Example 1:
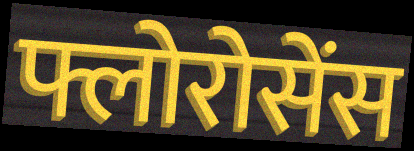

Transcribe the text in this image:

फ्लोरोसेंस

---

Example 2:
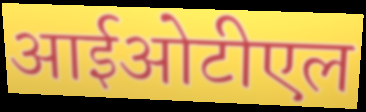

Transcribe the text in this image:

आईओटीएल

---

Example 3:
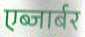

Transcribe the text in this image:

एब्जार्बर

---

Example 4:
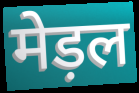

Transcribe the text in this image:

मेड़ल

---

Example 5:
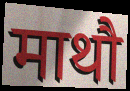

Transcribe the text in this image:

माथौ